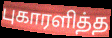
புகாரளித்த